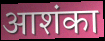
आशंका